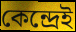
কেন্দ্রেই